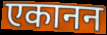
एकानन